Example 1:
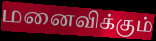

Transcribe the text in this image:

மனைவிக்கும்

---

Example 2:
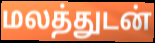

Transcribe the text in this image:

மலத்துடன்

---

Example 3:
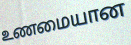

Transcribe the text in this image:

உணமையான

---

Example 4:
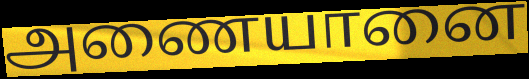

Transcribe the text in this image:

அணையானை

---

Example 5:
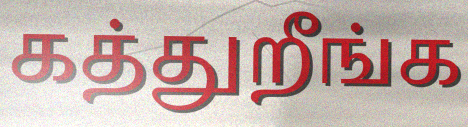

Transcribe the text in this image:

கத்துறீங்க